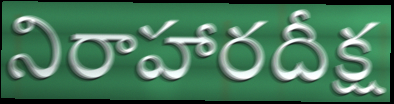
నిరాహారదీక్ష